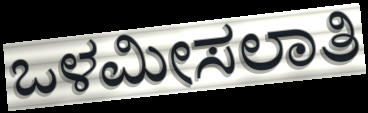
ಒಳಮೀಸಲಾತಿ